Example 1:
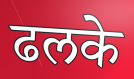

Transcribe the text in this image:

ढलके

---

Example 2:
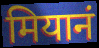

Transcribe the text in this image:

मियानं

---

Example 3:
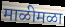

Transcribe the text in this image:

माळीमळा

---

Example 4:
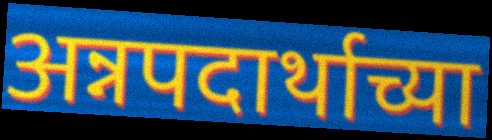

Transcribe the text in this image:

अन्नपदार्थाच्या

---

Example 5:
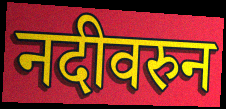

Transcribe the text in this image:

नदीवरुन